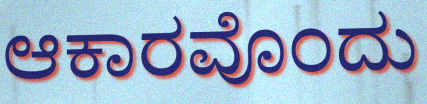
ಆಕಾರವೊಂದು